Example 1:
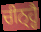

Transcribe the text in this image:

ਚੀਨ੍ਹ੍ਹੈ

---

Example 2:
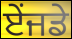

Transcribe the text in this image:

ਏਂਜਡੇ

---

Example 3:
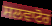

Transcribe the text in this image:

ਸਲਵਾਟੋਰ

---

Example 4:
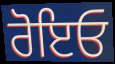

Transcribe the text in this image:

ਰੋਇਓ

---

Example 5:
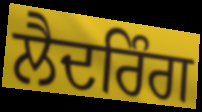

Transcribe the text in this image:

ਲੈਦਰਿੰਗ